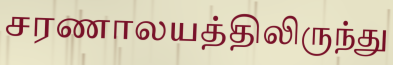
சரணாலயத்திலிருந்து